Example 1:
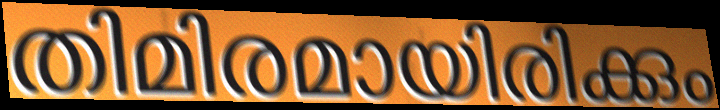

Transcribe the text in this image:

തിമിരമായിരിക്കും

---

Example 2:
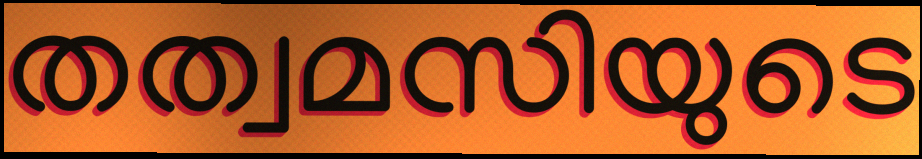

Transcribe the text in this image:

തത്വമസിയുടെ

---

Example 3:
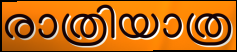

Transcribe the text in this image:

രാത്രിയാത്ര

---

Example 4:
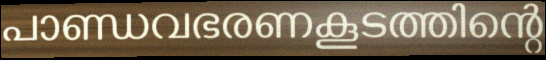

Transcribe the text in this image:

പാണ്ഡവഭരണകൂടത്തിന്റെ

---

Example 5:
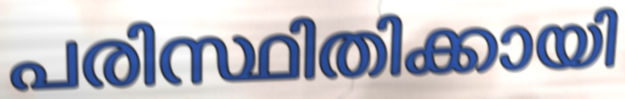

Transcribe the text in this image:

പരിസ്ഥിതിക്കായി